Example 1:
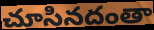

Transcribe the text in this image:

చూసినదంతా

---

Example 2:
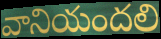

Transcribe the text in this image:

వానియందలి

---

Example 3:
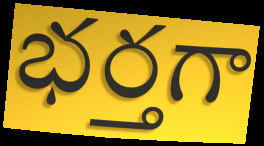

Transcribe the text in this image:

భర్తగా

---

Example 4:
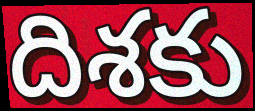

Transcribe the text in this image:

దిశకు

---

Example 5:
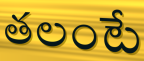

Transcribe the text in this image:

తలంటే